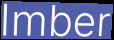
Imber